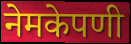
नेमकेपणी